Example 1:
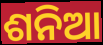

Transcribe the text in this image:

ଶନିଆ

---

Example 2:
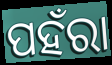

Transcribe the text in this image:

ପହଁରା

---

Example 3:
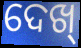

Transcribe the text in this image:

ଦେଖ୍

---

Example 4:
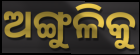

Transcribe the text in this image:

ଅଙ୍ଗୁଳିକୁ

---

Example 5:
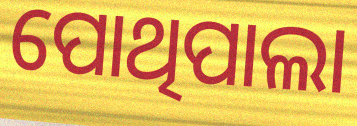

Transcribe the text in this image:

ପୋଥିପାଲା